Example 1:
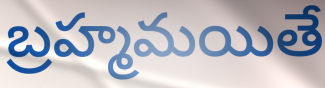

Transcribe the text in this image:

బ్రహ్మమయితే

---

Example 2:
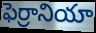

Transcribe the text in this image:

ఫెర్రానియా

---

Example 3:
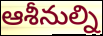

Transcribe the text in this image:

ఆశీనుల్ని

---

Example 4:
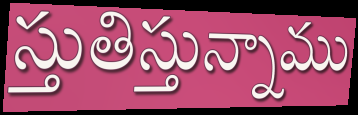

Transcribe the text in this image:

స్తుతిస్తున్నాము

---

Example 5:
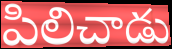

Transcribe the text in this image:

పిలిచాడు